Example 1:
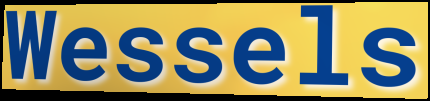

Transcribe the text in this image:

Wessels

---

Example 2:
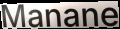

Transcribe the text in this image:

Manane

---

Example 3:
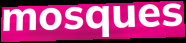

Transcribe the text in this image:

mosques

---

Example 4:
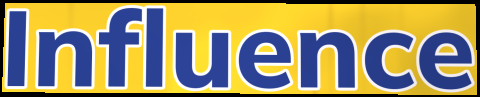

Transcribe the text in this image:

Influence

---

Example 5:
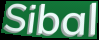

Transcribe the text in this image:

Sibal